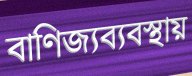
বাণিজ্যব্যবস্থায়